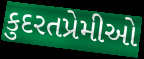
કુદરતપ્રેમીઓ